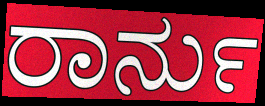
ರಾರ್ನು